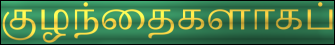
குழந்தைகளாகப்